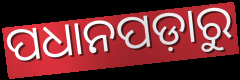
ପଧାନପଡ଼ାରୁ